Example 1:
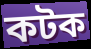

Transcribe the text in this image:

কটক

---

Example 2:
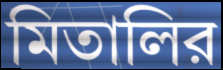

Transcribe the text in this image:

মিতালির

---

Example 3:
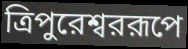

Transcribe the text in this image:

ত্রিপুরেশ্বররূপে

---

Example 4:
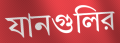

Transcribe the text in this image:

যানগুলির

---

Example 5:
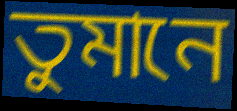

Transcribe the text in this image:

তুমানে